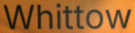
Whittow